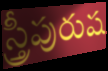
స్త్రీపురుష